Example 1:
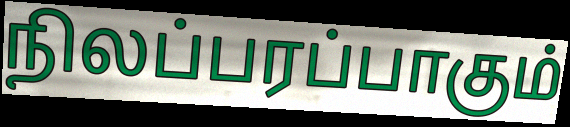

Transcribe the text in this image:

நிலப்பரப்பாகும்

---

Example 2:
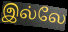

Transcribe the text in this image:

இல்லே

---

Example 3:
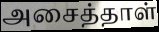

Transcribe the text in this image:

அசைத்தாள்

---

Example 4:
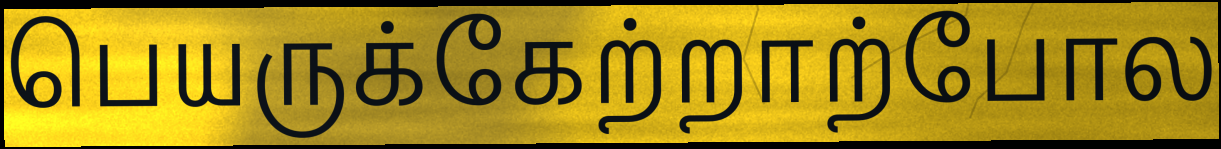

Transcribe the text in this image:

பெயருக்கேற்றாற்போல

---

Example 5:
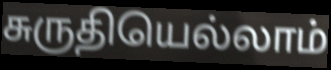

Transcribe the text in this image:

சுருதியெல்லாம்